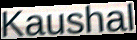
Kaushal